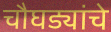
चौघड्यांचे